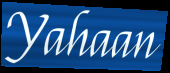
Yahaan